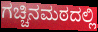
ಗಚ್ಚಿನಮಠದಲ್ಲಿ